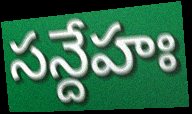
సన్దేహః